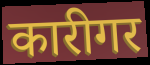
कारीगर